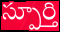
స్పూర్తి